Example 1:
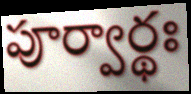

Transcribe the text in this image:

పూర్వార్థః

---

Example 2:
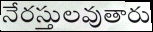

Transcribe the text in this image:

నేరస్తులవుతారు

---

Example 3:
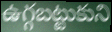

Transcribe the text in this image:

ఉగ్గబట్టుకుని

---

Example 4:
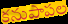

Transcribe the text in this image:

కనుపాపల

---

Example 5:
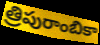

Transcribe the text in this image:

త్రిపురాంబికా